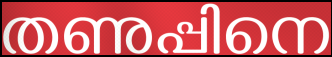
തണുപ്പിനെ